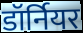
डॉर्नियर